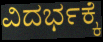
ವಿದರ್ಭಕ್ಕೆ